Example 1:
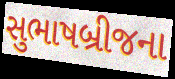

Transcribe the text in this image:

સુભાષબ્રીજના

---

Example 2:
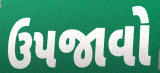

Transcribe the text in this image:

ઉપજાવો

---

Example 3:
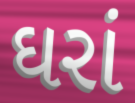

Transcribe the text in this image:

ઘરાં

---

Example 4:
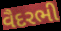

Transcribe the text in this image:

વૈદરભી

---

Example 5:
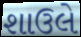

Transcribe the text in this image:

શાઉલે